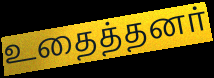
உதைத்தனர்